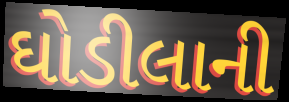
ઘોડીલાની